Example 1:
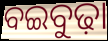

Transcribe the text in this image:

ବଇବୁଢ଼ା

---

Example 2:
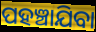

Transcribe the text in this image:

ପହଞ୍ଚାଯିବା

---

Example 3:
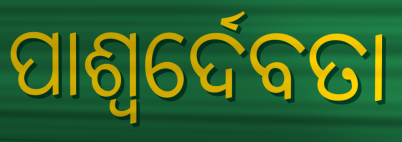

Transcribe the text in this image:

ପାଶ୍ୱର୍ଦେବତା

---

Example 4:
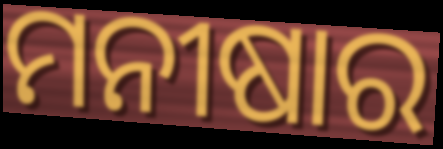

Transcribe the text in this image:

ମନୀଷାର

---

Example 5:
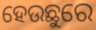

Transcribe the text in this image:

ହେଉଛୁରେ